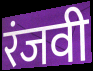
रंजवी